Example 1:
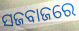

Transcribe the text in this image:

ସଜବାଜରେ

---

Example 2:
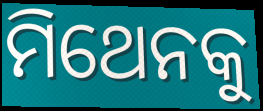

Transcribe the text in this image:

ମିଥେନକୁ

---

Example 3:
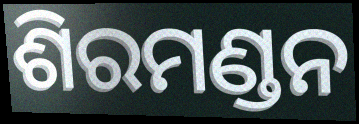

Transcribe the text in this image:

ଶିରମଣ୍ଡନ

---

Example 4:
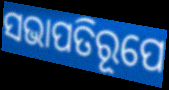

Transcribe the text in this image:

ସଭାପତିରୂପେ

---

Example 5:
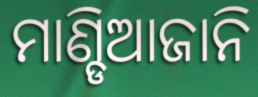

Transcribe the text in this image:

ମାଣ୍ଡିଆଜାନି